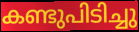
കണ്ടുപിടിച്ചു